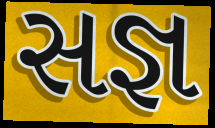
સજ્ઞ